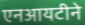
एनआयटीने